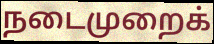
நடைமுறைக்